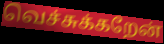
வெச்சுக்கறேன்